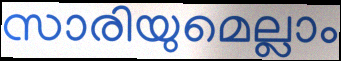
സാരിയുമെല്ലാം